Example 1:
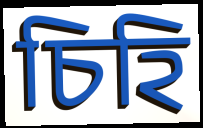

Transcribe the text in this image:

চিহি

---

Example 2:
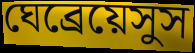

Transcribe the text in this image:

ঘেব্রেয়েসুস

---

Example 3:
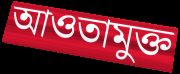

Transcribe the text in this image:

আওতামুক্ত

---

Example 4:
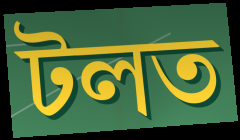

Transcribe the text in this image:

টলত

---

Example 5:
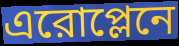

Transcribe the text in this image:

এরোপ্লেনে